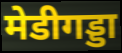
मेडीगड्डा